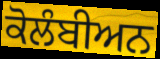
ਕੋਲੰਬੀਅਨ